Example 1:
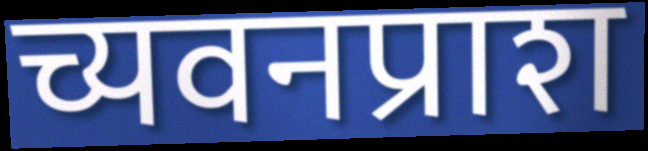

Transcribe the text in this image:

च्यवनप्राश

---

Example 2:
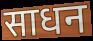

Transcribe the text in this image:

साधन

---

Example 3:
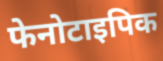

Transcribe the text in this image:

फेनोटाइपिक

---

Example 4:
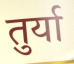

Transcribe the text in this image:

तुर्या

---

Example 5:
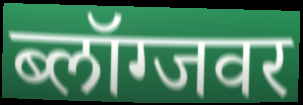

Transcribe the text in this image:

ब्लॉग्जवर